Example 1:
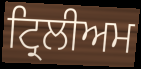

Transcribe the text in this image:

ਟ੍ਰਿਲੀਅਮ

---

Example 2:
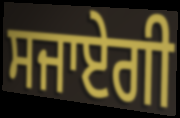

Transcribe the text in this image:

ਸਜਾਏਗੀ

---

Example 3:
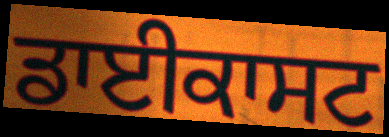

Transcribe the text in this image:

ਡਾਈਕਾਸਟ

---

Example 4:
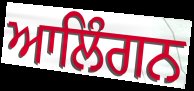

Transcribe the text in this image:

ਆਲਿੰਗਨ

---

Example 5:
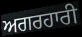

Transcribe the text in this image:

ਅਗਰਹਾਰੀ